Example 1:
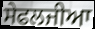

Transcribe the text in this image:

ਸੇਫਲਜੀਆ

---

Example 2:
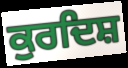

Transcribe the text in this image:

ਕੁਰਦਿਸ਼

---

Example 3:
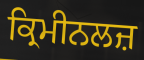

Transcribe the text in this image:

ਕ੍ਰਿਮੀਨਲਜ਼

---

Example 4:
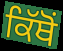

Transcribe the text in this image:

ਕਿੱਥੋੰ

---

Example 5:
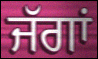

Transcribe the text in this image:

ਜੱਗਾਂ